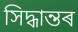
সিদ্ধান্তৰ